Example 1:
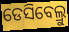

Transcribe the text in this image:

ଡେସିବେଲ୍ରୁ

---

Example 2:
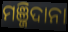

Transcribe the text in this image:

ମଞ୍ଜିଦାନା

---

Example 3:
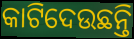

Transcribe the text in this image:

କାଟିଦେଉଛନ୍ତି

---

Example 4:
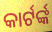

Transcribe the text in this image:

କାର୍ଟର୍ଙ୍କ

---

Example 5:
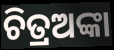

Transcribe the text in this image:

ଚିତ୍ରଅଙ୍କା